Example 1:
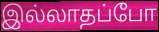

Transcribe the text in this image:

இல்லாதப்போ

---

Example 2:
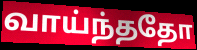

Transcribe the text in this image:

வாய்ந்ததோ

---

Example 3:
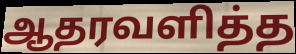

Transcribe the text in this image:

ஆதரவளித்த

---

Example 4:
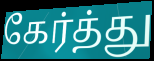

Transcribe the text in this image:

கேர்த்து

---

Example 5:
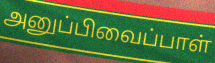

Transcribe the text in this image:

அனுப்பிவைப்பாள்